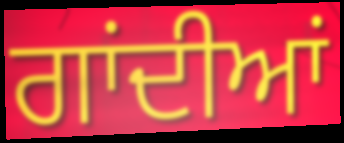
ਗਾਂਦੀਆਂ